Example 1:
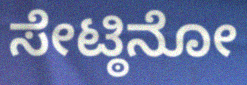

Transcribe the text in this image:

ಸೇಟ್ಠಿನೋ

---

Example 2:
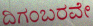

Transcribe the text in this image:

ದಿಗಂಬರವೇ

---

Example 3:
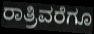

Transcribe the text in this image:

ರಾತ್ರಿವರೆಗೂ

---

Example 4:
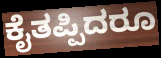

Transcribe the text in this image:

ಕೈತಪ್ಪಿದರೂ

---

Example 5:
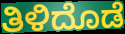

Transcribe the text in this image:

ತಿಳಿದೊಡೆ